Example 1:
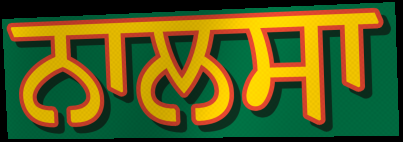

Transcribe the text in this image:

ਨਾਲਸਾ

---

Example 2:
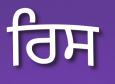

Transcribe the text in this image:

ਰਿਸ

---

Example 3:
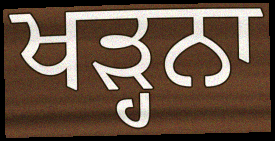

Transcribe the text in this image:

ਖੜ੍ਹਨਾ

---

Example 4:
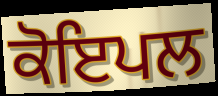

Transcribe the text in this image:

ਕੋਇਪਲ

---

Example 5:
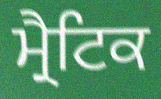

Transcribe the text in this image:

ਮ੍ਰੈਟਿਕ